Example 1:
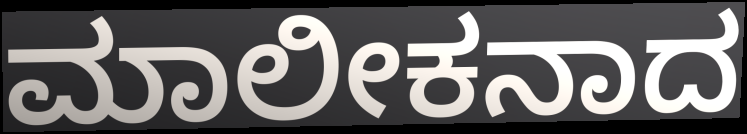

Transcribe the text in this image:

ಮಾಲೀಕನಾದ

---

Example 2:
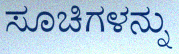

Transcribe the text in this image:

ಸೂಚಿಗಳನ್ನು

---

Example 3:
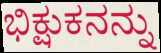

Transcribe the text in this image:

ಭಿಕ್ಷುಕನನ್ನು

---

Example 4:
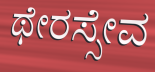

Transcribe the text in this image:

ಥೇರಸ್ಸೇವ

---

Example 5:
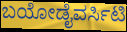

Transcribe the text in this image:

ಬಯೋಡೈವರ್ಸಿಟಿ